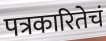
पत्रकारितेचं